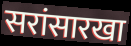
सरांसारखा